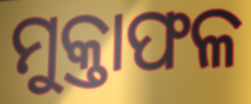
ମୁକ୍ତାଫଳ